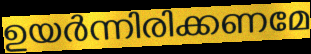
ഉയർന്നിരിക്കണമേ